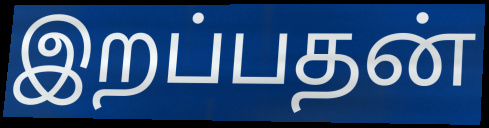
இறப்பதன்